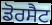
ਡੋਰਸੈਟ